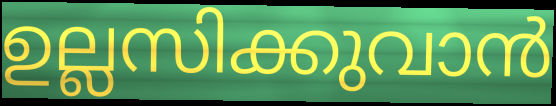
ഉല്ലസിക്കുവാൻ